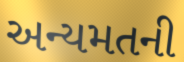
અન્યમતની